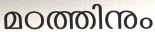
മഠത്തിനും